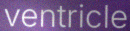
ventricle